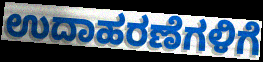
ಉದಾಹರಣೆಗಳಿಗೆ